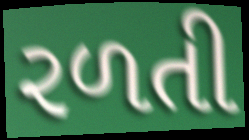
રળતી